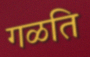
गळति